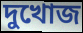
দুখোজ